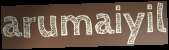
arumaiyil